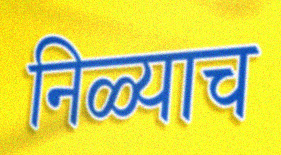
निळ्याच